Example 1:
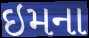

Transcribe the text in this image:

ઇમના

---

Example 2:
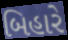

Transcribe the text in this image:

બિહારે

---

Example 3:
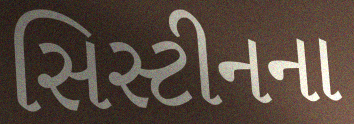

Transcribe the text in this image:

સિસ્ટીનના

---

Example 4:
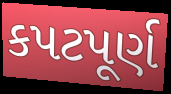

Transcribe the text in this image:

કપટપૂર્ણ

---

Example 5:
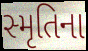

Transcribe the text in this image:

સ્મૃતિના